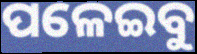
ପଳେଇବୁ